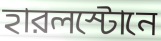
হারলস্টোনে